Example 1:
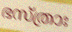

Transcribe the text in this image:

ഭസ്ത്രാഃ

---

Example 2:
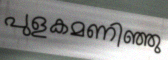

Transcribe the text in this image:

പുളകമണിഞ്ഞു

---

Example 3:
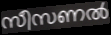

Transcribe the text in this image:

സീസണൽ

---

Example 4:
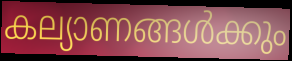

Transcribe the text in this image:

കല്യാണങ്ങൾക്കും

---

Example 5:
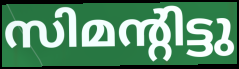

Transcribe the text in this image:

സിമന്റിട്ടു